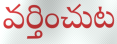
వర్తించుట